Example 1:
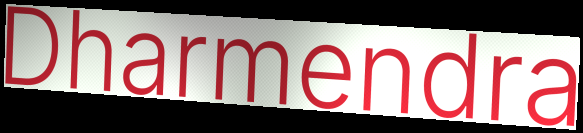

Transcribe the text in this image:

Dharmendra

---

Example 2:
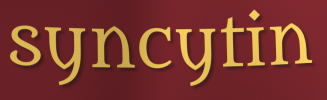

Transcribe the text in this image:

syncytin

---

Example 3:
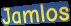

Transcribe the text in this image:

Jamlos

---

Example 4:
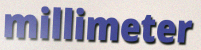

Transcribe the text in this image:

millimeter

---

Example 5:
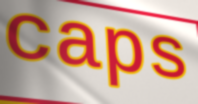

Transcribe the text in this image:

caps